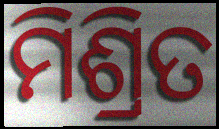
ମିଶ୍ରିତ